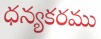
ధన్యకరము